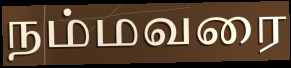
நம்மவரை